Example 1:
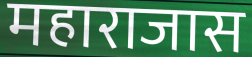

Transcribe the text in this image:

महाराजास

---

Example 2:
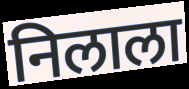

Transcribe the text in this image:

निलाला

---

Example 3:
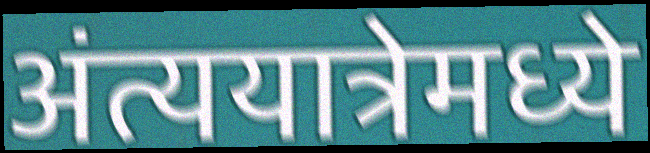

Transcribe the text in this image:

अंत्ययात्रेमध्ये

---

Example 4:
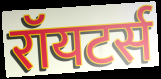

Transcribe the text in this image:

रॉयटर्स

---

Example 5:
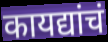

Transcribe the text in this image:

कायद्यांचं